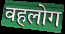
वहलोग